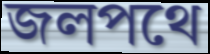
জলপথে